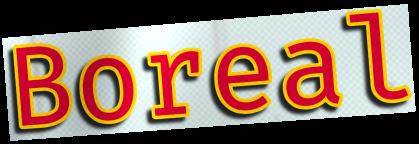
Boreal